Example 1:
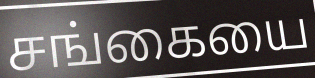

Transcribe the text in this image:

சங்கையை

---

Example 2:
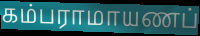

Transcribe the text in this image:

கம்பராமாயணப்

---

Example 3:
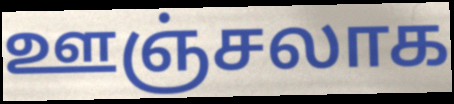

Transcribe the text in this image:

ஊஞ்சலாக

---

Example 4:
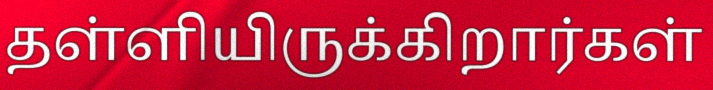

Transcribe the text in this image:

தள்ளியிருக்கிறார்கள்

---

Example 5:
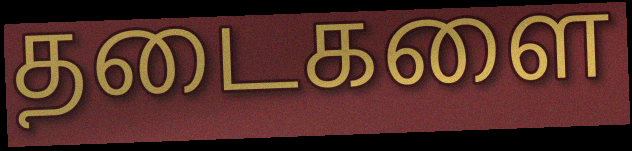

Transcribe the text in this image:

தடைகளை